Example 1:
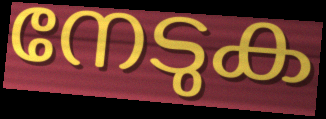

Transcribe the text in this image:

നേടുക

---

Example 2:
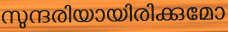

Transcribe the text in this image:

സുന്ദരിയായിരിക്കുമോ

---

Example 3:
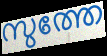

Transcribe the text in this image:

സുത്തേ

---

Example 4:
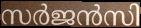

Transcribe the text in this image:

സർജൻസി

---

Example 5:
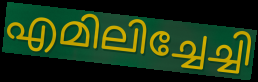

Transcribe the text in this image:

എമിലിച്ചേച്ചി